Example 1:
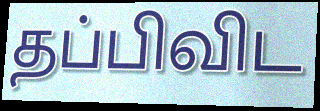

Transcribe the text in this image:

தப்பிவிட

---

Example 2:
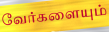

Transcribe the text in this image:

வேர்களையும்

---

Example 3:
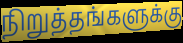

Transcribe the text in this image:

நிறுத்தங்களுக்கு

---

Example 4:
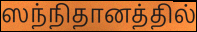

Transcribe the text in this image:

ஸந்நிதானத்தில்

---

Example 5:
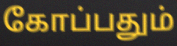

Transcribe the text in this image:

கோப்பதும்